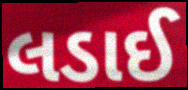
લડાઈ